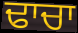
ਢਾਚਾ